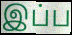
இப்ப